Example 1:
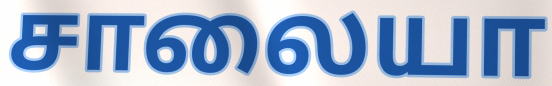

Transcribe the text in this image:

சாலையா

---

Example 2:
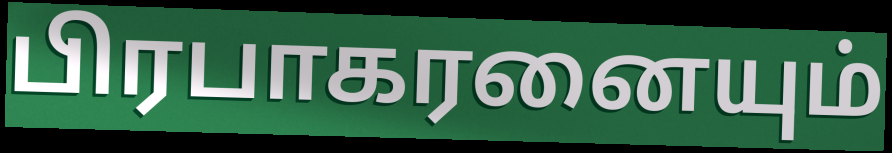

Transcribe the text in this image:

பிரபாகரனையும்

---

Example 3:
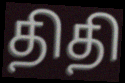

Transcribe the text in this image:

திதி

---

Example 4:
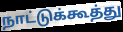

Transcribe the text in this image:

நாட்டுக்கூத்து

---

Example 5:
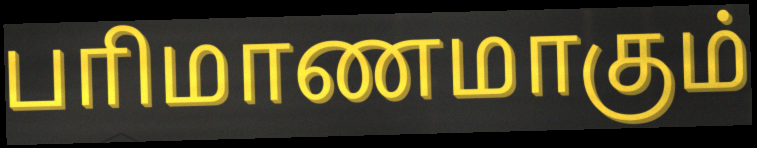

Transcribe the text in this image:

பரிமாணமாகும்